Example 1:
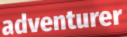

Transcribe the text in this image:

adventurer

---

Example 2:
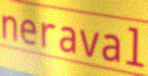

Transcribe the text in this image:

neraval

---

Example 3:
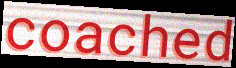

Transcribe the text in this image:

coached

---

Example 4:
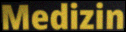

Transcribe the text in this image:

Medizin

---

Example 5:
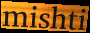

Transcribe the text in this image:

mishti